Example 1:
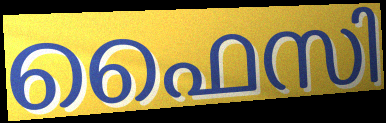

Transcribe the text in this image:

ഫൈസി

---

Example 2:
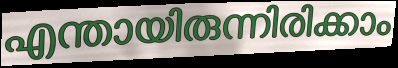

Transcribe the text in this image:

എന്തായിരുന്നിരിക്കാം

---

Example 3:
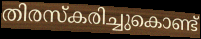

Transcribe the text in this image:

തിരസ്കരിച്ചുകൊണ്ട്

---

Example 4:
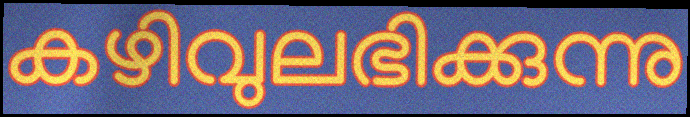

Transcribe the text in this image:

കഴിവുലഭിക്കുന്നു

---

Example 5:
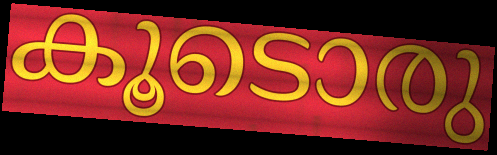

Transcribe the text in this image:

കൂടൊരു